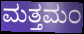
ಮತ್ತಮಂ